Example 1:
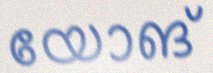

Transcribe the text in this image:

യോങ്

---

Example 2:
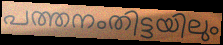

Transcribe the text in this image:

പത്തനംതിട്ടയിലും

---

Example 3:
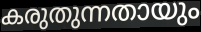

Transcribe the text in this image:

കരുതുന്നതായും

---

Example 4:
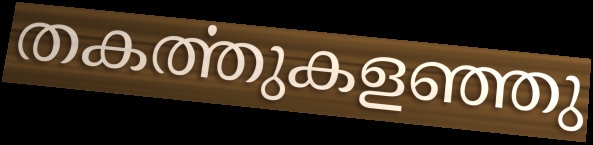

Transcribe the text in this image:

തകൎത്തുകളഞ്ഞു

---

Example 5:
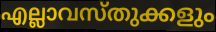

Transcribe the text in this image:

എല്ലാവസ്തുക്കളും